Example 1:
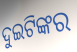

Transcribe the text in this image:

ଦୁଇଟିଙ୍କର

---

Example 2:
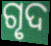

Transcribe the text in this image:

ଗୃଦ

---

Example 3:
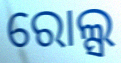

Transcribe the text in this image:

ରୋଲ୍ସ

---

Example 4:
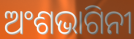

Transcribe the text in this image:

ଅଂଶଭାଗିନୀ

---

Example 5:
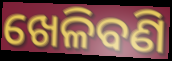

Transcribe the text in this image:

ଖେଳିବଣି